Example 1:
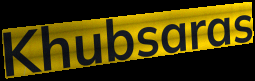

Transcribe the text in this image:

Khubsaras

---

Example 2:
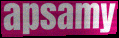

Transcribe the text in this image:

apsamy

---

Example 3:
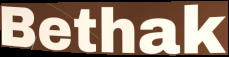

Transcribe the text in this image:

Bethak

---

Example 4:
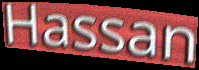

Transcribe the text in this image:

Hassan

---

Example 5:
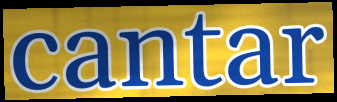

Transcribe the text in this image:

cantar